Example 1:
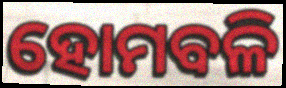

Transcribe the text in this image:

ହୋମବଳି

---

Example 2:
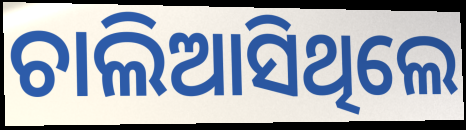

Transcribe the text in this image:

ଚାଲିଆସିଥିଲେ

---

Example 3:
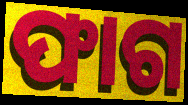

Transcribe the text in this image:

ଫାଗ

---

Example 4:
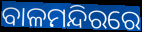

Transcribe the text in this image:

ବାଳମନ୍ଦିରରେ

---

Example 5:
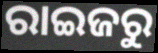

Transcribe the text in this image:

ରାଇଜରୁ